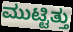
ಮುಟ್ಟಿತ್ತು